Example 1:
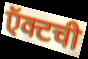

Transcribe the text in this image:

ऍक्टची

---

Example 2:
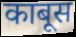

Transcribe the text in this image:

काबूस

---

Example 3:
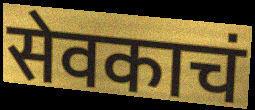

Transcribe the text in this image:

सेवकाचं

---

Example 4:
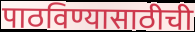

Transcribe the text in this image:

पाठविण्यासाठीची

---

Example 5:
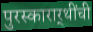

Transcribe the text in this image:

पुरस्कारार्थींची